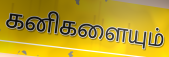
கனிகளையும்